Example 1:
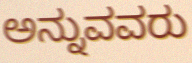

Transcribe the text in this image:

ಅನ್ನುವವರು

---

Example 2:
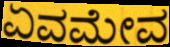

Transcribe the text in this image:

ಏವಮೇವ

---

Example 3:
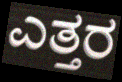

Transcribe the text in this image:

ಎತ್ತರ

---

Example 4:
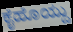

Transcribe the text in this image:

ಕೈಹೊಯ್ದು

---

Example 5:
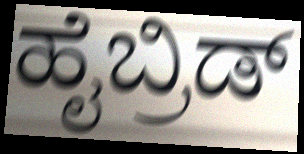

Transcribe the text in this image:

ಹೈಬ್ರಿಡ್